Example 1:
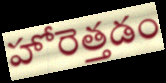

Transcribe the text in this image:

హోరెత్తడం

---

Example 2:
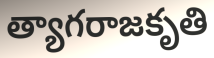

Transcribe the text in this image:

త్యాగరాజకృతి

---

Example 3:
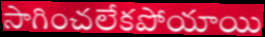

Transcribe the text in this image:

సాగించలేకపోయాయి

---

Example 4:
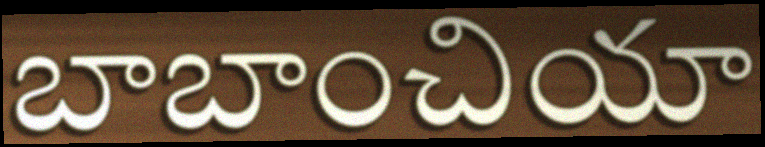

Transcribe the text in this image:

బాబాంచియా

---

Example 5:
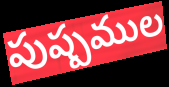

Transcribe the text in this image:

పుష్పముల